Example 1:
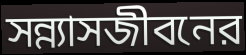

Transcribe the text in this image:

সন্ন্যাসজীবনের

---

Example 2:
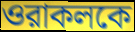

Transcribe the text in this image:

ওরাকলকে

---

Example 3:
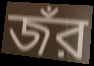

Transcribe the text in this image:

জঁর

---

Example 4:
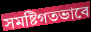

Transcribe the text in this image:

সমষ্টিগতভাবে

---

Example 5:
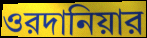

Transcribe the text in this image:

ওরদানিয়ার